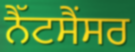
ਨੈੱਟਸੈਂਸਰ